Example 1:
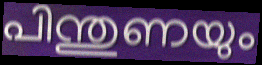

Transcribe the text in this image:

പിന്തുണയും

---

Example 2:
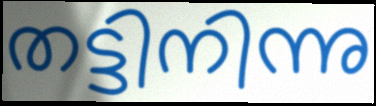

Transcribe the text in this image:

തട്ടിനിന്നു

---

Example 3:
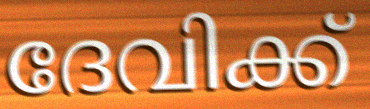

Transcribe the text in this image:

ദേവിക്ക്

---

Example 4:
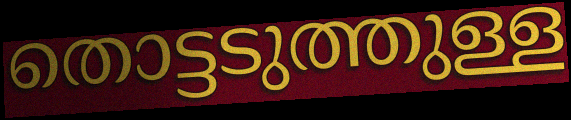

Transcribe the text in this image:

തൊട്ടടുത്തുള്ള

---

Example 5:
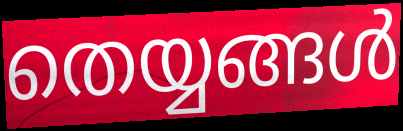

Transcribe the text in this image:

തെയ്യങ്ങൾ